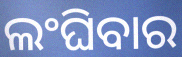
ଲଂଘିବାର